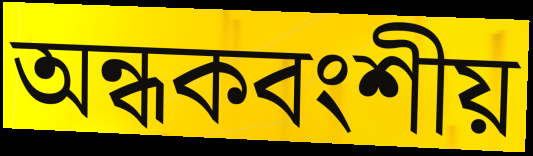
অন্ধকবংশীয়